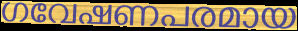
ഗവേഷണപരമായ